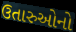
ઉતારુઓનો